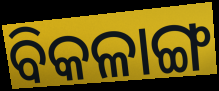
ବିକଳାଙ୍ଗ